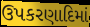
ઉપકરણાદિમાં